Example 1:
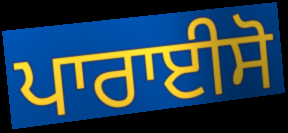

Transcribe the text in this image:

ਪਾਰਾਈਸੋ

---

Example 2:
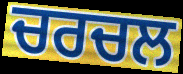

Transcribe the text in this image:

ਚਰਚਲ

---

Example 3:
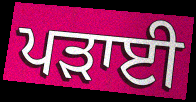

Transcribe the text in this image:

ਪੜਾਈ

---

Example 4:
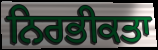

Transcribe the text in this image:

ਨਿਰਭੀਕਤਾ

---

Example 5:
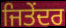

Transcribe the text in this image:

ਜਿਤੇਂਦਰ